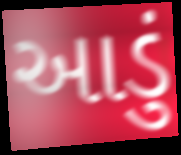
આડું